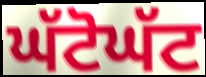
ਘੱਟੋਘੱਟ